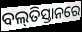
ବଲ୍‌ତିସ୍ତାନରେ